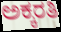
ಅಕ್ಕರತಿ